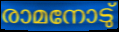
രാമനോടു്